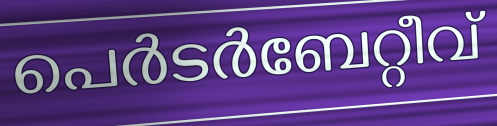
പെർടർബേറ്റീവ്